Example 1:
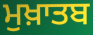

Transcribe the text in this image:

ਮੁਖ਼ਾਤਬ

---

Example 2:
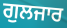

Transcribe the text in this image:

ਗੁਲਜਾਰ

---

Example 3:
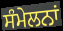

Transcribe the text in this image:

ਸੰਮੇਲਨਾਂ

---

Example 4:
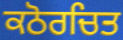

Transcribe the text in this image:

ਕਠੋਰਚਿਤ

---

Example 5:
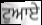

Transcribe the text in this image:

ਟੁਆਏ